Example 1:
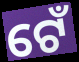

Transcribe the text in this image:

ଟେଁ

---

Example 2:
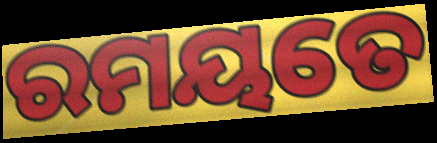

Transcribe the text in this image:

ରମୟତେ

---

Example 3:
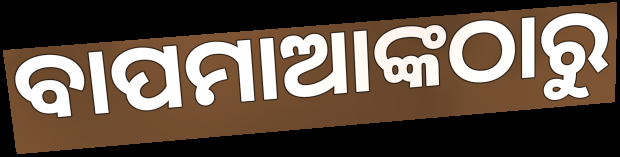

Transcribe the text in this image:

ବାପମାଆଙ୍କଠାରୁ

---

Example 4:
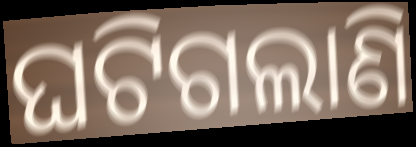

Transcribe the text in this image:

ଘଟିଗଲାଣି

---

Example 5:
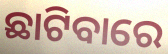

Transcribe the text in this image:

ଛାଟିବାରେ